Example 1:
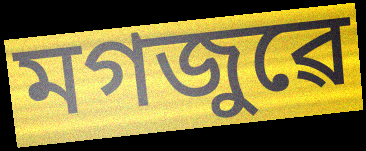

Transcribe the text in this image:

মগজুৱে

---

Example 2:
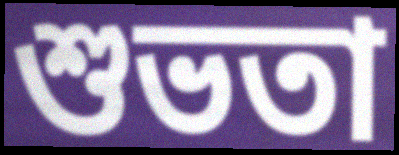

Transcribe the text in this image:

শুভতা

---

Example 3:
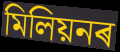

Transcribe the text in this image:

মিলিয়নৰ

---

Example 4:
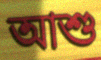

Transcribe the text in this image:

আশু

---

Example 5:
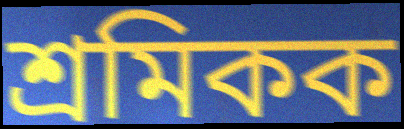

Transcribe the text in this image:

শ্ৰমিকক